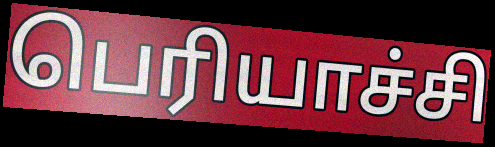
பெரியாச்சி